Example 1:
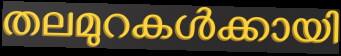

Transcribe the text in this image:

തലമുറകൾക്കായി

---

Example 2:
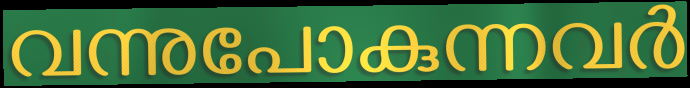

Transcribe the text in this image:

വന്നുപോകുന്നവർ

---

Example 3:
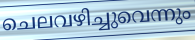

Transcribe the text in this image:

ചെലവഴിച്ചുവെന്നും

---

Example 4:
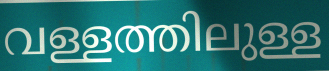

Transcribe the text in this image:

വള്ളത്തിലുള്ള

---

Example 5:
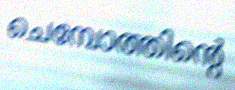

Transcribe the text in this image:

ചെമ്പോത്തിന്റെ